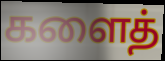
களைத்